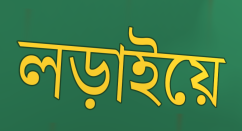
লড়াইয়ে